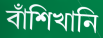
বাঁশিখানি